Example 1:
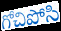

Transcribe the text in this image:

గోచిపోసి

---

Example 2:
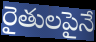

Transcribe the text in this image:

రైతులపైనే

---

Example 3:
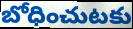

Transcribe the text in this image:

బోధించుటకు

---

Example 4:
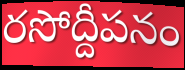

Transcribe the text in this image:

రసోద్దీపనం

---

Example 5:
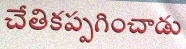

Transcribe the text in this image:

చేతికప్పగించాడు